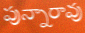
పున్నారావు